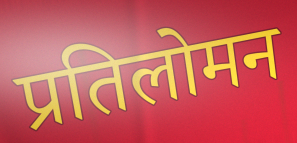
प्रतिलोमन